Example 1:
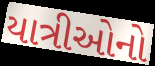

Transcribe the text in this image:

યાત્રીઓનો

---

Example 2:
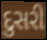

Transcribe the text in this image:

દુસરી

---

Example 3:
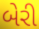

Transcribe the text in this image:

બેરી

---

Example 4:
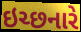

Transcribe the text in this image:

ઇચ્છનારે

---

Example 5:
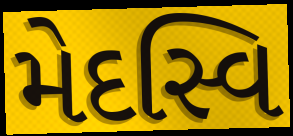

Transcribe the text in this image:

મેદસ્વિ